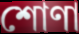
শোণা